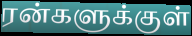
ரன்களுக்குள்